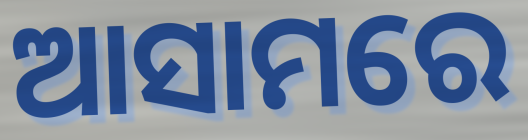
ଆସାମରେ